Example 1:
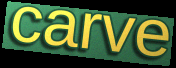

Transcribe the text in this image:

carve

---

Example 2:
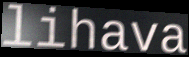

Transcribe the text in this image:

lihava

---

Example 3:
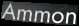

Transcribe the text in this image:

Ammon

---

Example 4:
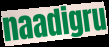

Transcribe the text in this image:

naadigru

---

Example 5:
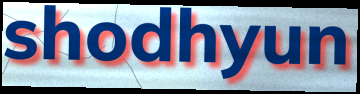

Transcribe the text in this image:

shodhyun